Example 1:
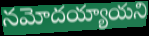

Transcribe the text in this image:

నమోదయ్యాయని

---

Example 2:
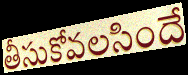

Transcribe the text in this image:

తీసుకోవలసిందే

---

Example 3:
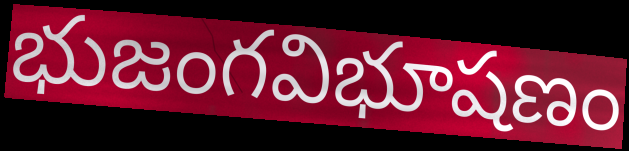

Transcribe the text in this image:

భుజంగవిభూషణం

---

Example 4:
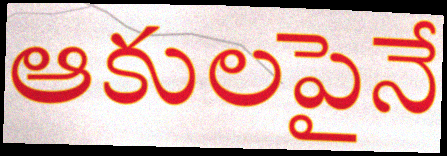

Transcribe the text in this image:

ఆకులపైనే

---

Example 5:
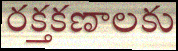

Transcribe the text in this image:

రక్తకణాలకు